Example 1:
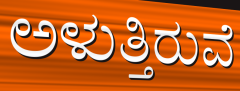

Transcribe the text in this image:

ಅಳುತ್ತಿರುವೆ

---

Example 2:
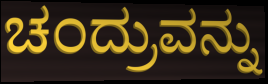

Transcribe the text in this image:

ಚಂದ್ರುವನ್ನು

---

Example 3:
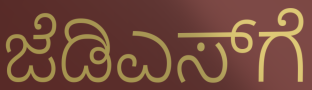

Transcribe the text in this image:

ಜೆಡಿಎಸ್‌ಗೆ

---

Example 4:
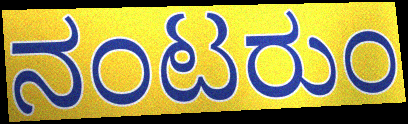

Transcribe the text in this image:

ನಂಟರುಂ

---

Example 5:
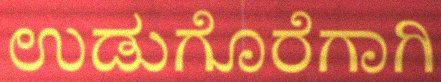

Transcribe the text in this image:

ಉಡುಗೊರೆಗಾಗಿ